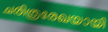
ചരിത്രരേഖയായി